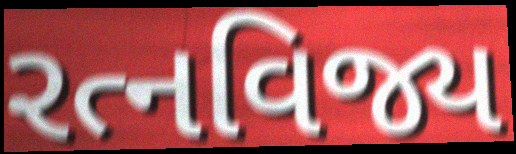
રત્નવિજ્ય